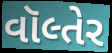
વૉલ્તેર